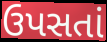
ઉપસતાં